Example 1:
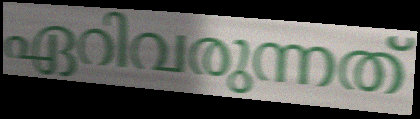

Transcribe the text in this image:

ഏറിവരുന്നത്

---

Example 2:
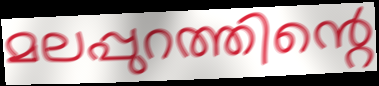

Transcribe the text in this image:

മലപ്പുറത്തിന്റെ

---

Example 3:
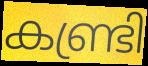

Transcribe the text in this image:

കണ്ട്രി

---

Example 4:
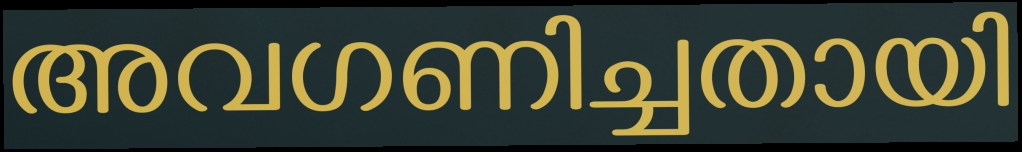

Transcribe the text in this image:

അവഗണിച്ചതായി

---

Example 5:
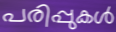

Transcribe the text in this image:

പരിപ്പുകൾ